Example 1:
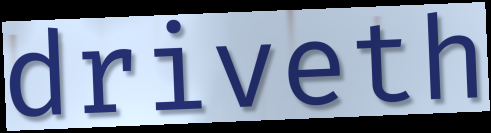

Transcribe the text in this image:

driveth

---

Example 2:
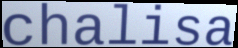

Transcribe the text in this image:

chalisa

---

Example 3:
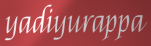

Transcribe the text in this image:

yadiyurappa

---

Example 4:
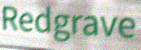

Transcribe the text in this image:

Redgrave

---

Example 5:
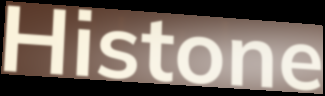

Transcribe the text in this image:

Histone